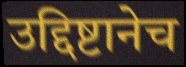
उद्दिष्टानेच